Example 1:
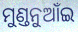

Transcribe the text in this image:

ମୁଣ୍ଡନୁଆଁଇ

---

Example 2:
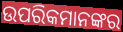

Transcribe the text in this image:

ଉପରିକମାନଙ୍କର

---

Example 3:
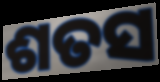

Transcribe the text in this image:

ଶତସ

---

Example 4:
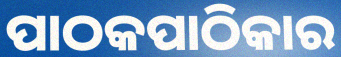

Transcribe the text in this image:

ପାଠକପାଠିକାର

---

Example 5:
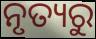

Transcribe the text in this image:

ନୃତ୍ୟରୁ